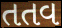
તતવ